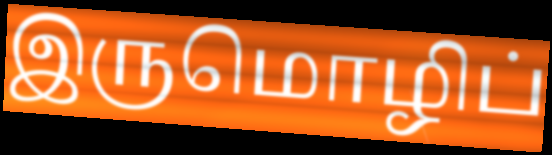
இருமொழிப்